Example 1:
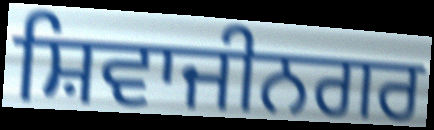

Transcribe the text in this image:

ਸ਼ਿਵਾਜੀਨਗਰ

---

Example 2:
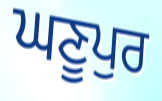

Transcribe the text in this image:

ਘਣੂਪੁਰ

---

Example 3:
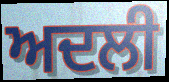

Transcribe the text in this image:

ਅਦਲੀ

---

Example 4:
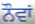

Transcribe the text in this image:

ਨੌਵਾਂ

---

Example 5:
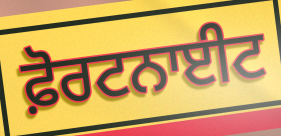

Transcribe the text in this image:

ਫ਼ੋਰਟਨਾਈਟ